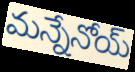
మన్నేనోయ్